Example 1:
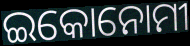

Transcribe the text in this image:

ଇକୋନୋମୀ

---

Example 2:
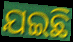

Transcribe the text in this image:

ଯଇଛି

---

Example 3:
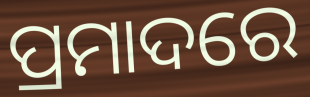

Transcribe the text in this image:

ପ୍ରମାଦରେ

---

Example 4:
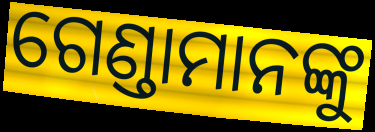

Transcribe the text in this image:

ଗେଣ୍ଡାମାନଙ୍କୁ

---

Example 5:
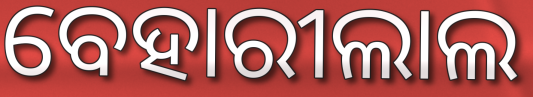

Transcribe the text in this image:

ବେହାରୀଲାଲ